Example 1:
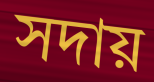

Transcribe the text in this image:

সদায়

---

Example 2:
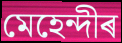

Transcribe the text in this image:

মেহেন্দীৰ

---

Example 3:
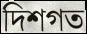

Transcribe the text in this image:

দিশগত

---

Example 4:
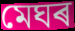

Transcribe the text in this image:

মেঘৰ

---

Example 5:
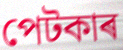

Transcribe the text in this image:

পেটকাৰ